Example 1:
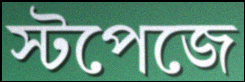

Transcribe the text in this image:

স্টপেজে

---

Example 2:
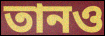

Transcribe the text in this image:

তানও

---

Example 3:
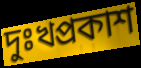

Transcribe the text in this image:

দুঃখপ্রকাশ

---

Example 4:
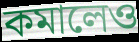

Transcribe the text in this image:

কমালেও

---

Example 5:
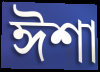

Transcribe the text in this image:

ঈশা